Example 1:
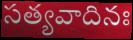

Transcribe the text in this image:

సత్యవాదినః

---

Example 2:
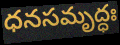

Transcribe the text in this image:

ధనసమృద్ధః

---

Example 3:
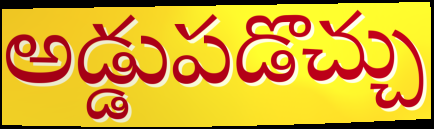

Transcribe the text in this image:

అడ్డుపడొచ్చు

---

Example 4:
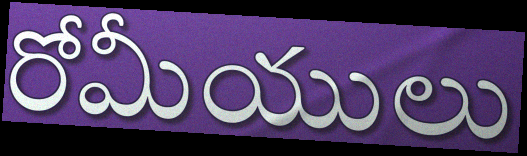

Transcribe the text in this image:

రోమీయులు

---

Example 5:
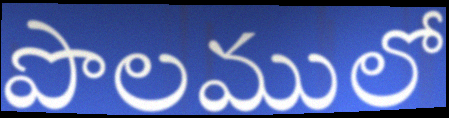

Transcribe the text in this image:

పొలములో